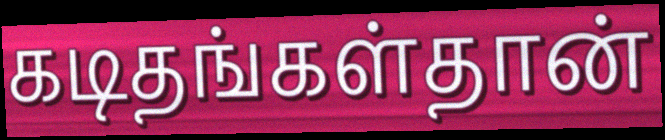
கடிதங்கள்தான்